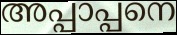
അപ്പാപ്പനെ